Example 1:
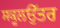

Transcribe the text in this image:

ਸਕੂਲਉੱਤਰ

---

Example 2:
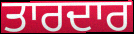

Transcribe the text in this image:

ਤਾਰਦਾਰ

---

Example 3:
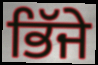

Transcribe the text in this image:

ਭਿੱਜੇ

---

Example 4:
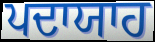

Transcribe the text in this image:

ਪਦਾਯਾਹ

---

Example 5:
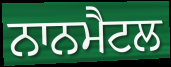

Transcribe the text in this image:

ਨਾਨਮੈਟਲ